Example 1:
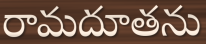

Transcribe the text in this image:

రామదూతను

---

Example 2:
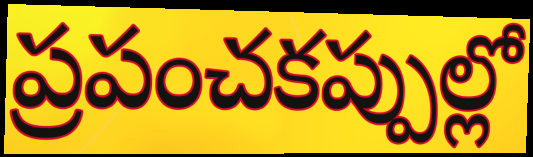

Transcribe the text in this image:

ప్రపంచకప్పుల్లో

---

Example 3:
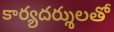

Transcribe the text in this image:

కార్యదర్శులతో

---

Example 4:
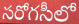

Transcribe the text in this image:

సరోగసీలో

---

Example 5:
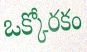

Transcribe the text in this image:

ఒక్కోరకం